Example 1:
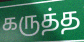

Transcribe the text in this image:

கருத்த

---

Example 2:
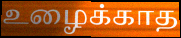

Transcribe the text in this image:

உழைக்காத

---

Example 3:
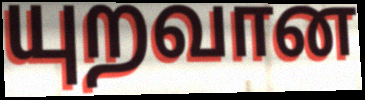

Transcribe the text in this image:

யுறவான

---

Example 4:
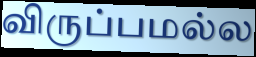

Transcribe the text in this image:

விருப்பமல்ல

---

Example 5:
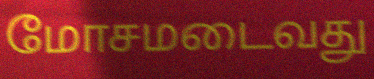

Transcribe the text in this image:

மோசமடைவது